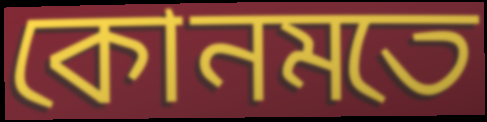
কোনমতে